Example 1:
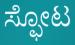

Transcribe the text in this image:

ಸ್ಫೋಟ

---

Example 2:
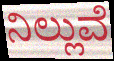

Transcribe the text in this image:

ನಿಲ್ಲುವೆ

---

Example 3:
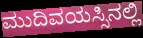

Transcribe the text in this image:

ಮುದಿವಯಸ್ಸಿನಲ್ಲಿ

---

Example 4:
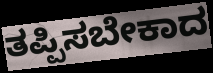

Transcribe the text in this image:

ತಪ್ಪಿಸಬೇಕಾದ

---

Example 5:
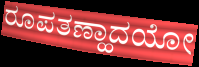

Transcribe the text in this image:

ರೂಪತಣ್ಹಾದಯೋ